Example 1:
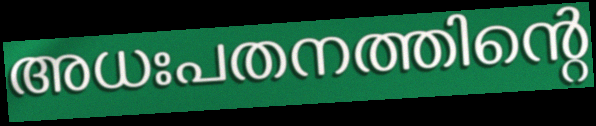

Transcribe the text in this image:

അധഃപതനത്തിന്റെ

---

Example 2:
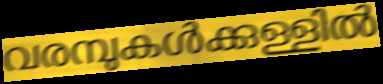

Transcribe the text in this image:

വരമ്പുകൾക്കുള്ളിൽ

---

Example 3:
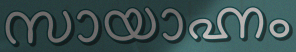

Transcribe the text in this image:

സായാഹ്നം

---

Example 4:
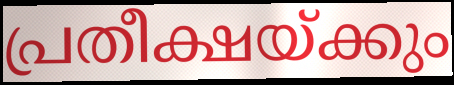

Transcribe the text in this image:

പ്രതീക്ഷയ്ക്കും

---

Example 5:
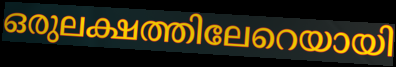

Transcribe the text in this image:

ഒരുലക്ഷത്തിലേറെയായി